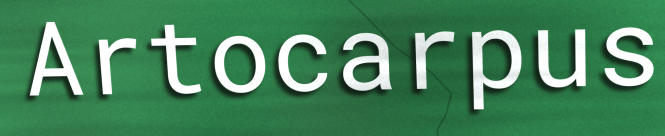
Artocarpus